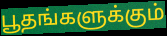
பூதங்களுக்கும்